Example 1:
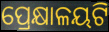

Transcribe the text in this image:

ପ୍ରେକ୍ଷାଳୟଟି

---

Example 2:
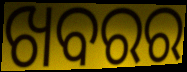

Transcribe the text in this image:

ଖବରର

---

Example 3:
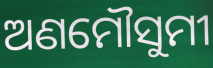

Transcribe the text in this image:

ଅଣମୌସୁମୀ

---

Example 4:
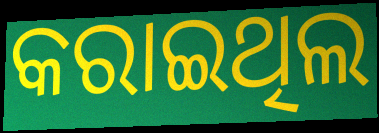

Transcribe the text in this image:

କରାଇଥିଲ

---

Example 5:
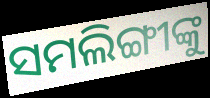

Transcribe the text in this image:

ସମଲିଙ୍ଗୀଙ୍କୁ